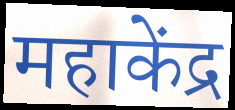
महाकेंद्र